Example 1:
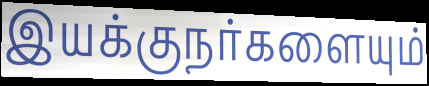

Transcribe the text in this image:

இயக்குநர்களையும்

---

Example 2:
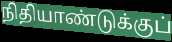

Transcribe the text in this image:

நிதியாண்டுக்குப்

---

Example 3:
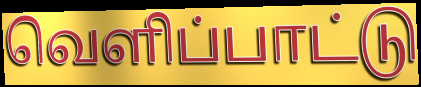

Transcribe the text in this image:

வெளிப்பாட்டு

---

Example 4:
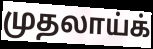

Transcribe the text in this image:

முதலாய்க்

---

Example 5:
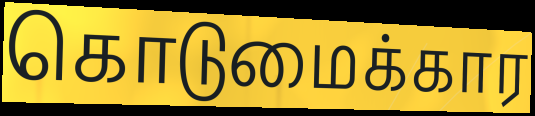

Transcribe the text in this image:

கொடுமைக்கார